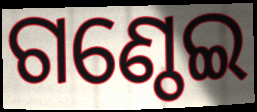
ଗଣ୍ଠେଇ